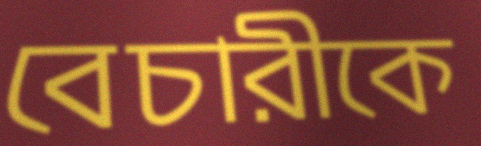
বেচারীকে